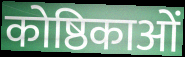
कोष्ठिकाओं